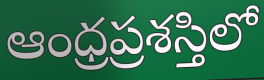
ఆంధ్రప్రశస్తిలో